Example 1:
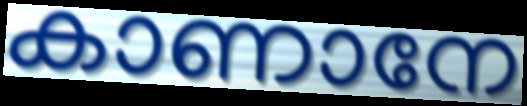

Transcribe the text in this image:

കാണാനേ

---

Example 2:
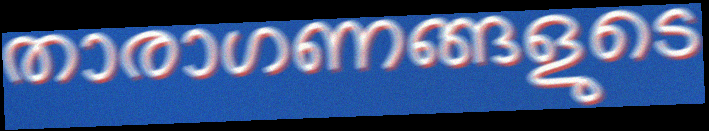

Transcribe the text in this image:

താരാഗണങ്ങളുടെ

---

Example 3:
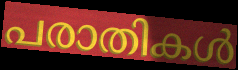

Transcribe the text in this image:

പരാതികൾ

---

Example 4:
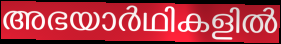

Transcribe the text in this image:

അഭയാർഥികളിൽ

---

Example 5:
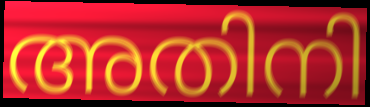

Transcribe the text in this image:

അതിനി